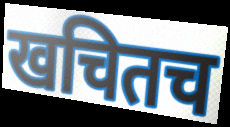
खचितच